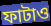
ফাটাও